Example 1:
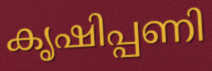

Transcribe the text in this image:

കൃഷിപ്പണി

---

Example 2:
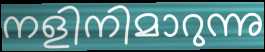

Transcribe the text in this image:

നളിനിമാറുന്നു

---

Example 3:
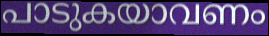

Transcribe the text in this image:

പാടുകയാവണം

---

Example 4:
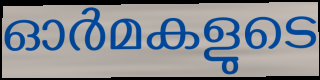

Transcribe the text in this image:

ഓർമകളുടെ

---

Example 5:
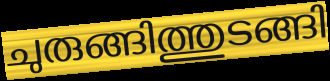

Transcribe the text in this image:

ചുരുങ്ങിത്തുടങ്ങി